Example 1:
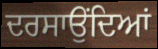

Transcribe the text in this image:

ਦਰਸਾਉਂਦਿਆਂ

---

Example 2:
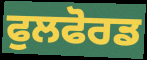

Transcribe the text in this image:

ਫੁਲਫੋਰਡ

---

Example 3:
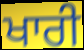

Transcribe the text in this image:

ਖਾਰੀ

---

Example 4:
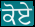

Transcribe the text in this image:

ਕੋਏ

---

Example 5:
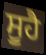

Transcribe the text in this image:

ਸੂਹੈ